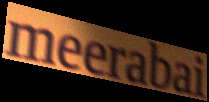
meerabai